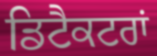
ਡਿਟੈਕਟਰਾਂ